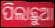
ପିଲାଛୁଆ